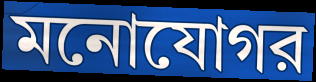
মনোযোগর